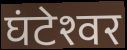
घंटेश्वर